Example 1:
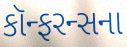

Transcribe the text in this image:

કૉન્ફરન્સના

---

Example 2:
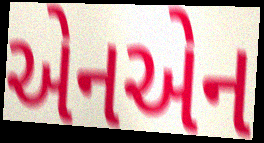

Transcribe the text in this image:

એનએન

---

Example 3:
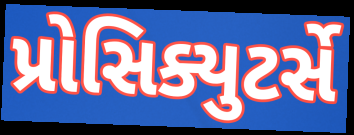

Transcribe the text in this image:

પ્રોસિક્યુટર્સે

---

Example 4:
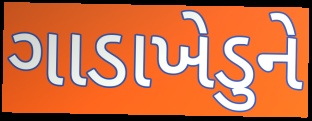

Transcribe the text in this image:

ગાડાખેડુને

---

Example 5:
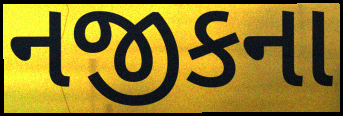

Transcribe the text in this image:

નજીકના